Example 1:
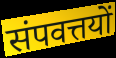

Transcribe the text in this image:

संपवत्तयों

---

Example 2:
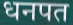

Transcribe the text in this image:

धनपत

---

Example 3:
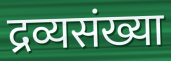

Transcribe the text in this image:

द्रव्यसंख्या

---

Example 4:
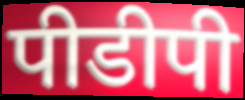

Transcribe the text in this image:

पीडीपी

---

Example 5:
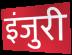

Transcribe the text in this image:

इंजुरी